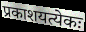
प्रकाशयत्येकः